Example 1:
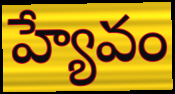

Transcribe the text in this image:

హ్యేవం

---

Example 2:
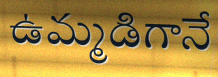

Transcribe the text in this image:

ఉమ్మడిగానే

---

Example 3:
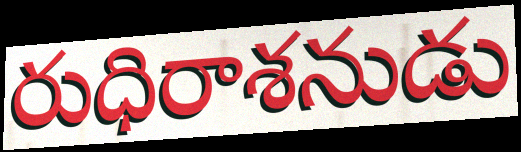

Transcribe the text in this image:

రుధిరాశనుడు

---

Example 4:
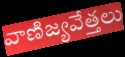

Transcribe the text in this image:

వాణిజ్యవేత్తలు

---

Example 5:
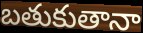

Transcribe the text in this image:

బతుకుతానా